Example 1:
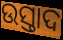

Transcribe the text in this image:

ଉସ୍ତାଦ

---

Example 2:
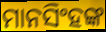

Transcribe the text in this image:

ମାନସିଂହଙ୍କ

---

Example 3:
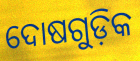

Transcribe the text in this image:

ଦୋଷଗୁଡ଼ିକ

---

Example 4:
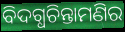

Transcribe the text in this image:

ବିଦଗ୍ଧଚିନ୍ତାମଣିର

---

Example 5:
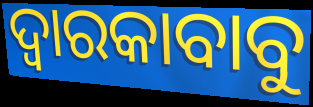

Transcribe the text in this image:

ଦ୍ୱାରକାବାବୁ